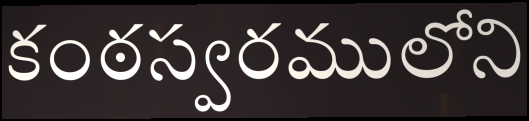
కంఠస్వరములోని